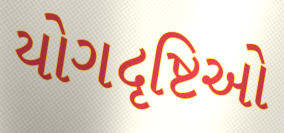
યોગદૃષ્ટિઓ